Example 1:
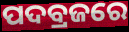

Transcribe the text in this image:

ପଦବ୍ରଜରେ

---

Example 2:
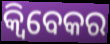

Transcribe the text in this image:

କ୍ୱିବେକର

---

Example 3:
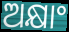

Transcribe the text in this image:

ଅକ୍ଷାଂ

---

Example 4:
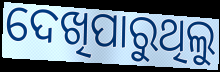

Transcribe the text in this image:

ଦେଖିପାରୁଥିଲୁ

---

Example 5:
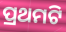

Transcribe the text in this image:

ପ୍ରଥମଟି